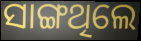
ସାଙ୍ଗଥିଲେ